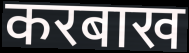
करबाख